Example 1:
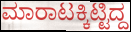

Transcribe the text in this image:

ಮಾರಾಟಕ್ಕಿಟ್ಟಿದ್ದ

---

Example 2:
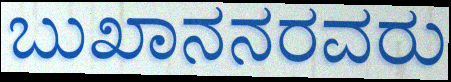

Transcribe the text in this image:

ಬುಖಾನನರವರು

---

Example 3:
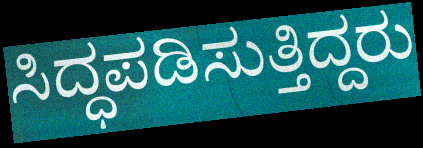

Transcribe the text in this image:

ಸಿದ್ಧಪಡಿಸುತ್ತಿದ್ದರು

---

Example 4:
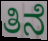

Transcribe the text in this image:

ತಿನೆ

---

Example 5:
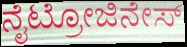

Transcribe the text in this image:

ನೈಟ್ರೋಜಿನೇಸ್